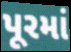
પૂરમાં